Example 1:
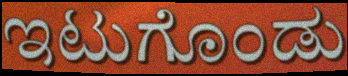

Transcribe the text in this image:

ಇಟುಗೊಂಡು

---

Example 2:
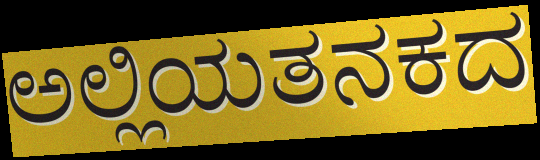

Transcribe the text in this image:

ಅಲ್ಲಿಯತನಕದ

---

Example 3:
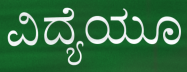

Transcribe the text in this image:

ವಿದ್ಯೆಯೂ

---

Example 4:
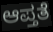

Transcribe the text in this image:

ಆಪ್ತತೆ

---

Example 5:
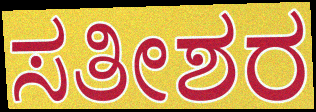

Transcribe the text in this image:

ಸತೀಶರ